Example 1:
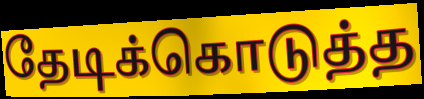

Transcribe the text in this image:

தேடிக்கொடுத்த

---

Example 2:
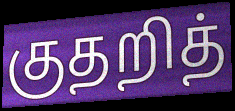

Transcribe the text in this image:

குதறித்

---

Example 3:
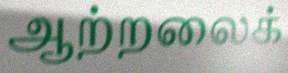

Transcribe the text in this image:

ஆற்றலைக்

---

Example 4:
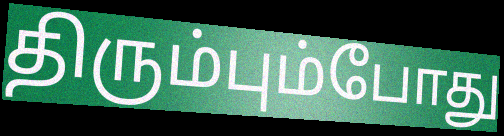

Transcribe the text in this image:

திரும்பும்போது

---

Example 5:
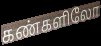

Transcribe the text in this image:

கண்களிலோ